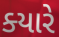
ક્‍યારે